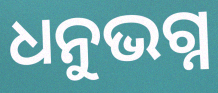
ଧନୁଭଗ୍ନ